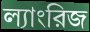
ল্যাংরিজ